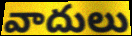
వాదులు